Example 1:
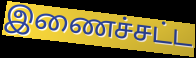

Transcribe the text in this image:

இணைச்சட்ட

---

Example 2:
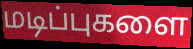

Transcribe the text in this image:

மடிப்புகளை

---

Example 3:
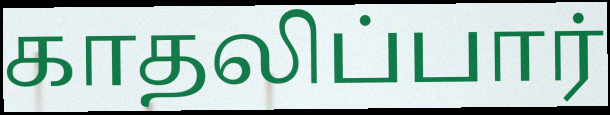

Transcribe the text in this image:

காதலிப்பார்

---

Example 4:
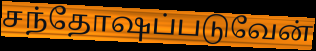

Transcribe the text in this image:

சந்தோஷப்படுவேன்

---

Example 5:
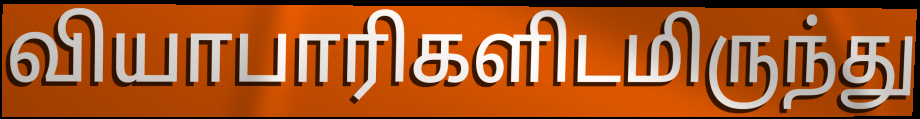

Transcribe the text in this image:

வியாபாரிகளிடமிருந்து